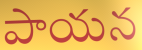
పాయన